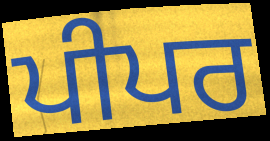
ਪੀਪਰ